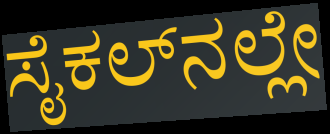
ಸೈಕಲ್‌ನಲ್ಲೇ